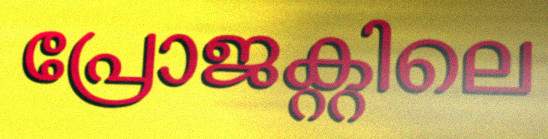
പ്രോജക്റ്റിലെ